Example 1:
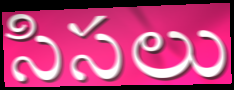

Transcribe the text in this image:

సిసలు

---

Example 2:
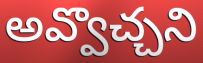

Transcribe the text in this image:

అవ్వొచ్చని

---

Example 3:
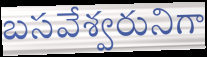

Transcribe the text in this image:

బసవేశ్వరునిగా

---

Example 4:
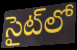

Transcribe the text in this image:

సైట్‌లో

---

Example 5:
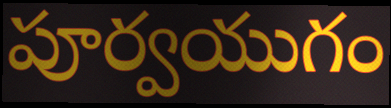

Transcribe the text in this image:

పూర్వయుగం